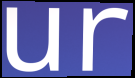
ur